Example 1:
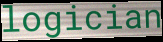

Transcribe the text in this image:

logician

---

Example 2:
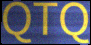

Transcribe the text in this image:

QTQ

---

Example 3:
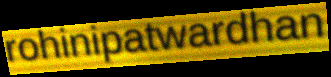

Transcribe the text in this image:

rohinipatwardhan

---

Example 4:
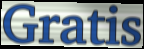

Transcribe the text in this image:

Gratis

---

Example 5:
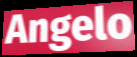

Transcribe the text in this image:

Angelo